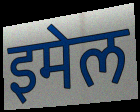
इमेल